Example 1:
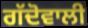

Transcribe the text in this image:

ਗੱਦੋਵਾਲੀ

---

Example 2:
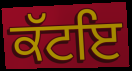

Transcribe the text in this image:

ਕੱਟਇ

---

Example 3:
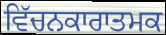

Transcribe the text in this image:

ਵਿੱਚਨਕਾਰਾਤਮਕ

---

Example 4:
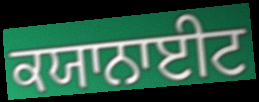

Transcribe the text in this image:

ਕਯਾਨਾਈਟ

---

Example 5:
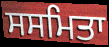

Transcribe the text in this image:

ਸਸਮਿਤਾ